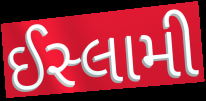
ઈસ્લામી